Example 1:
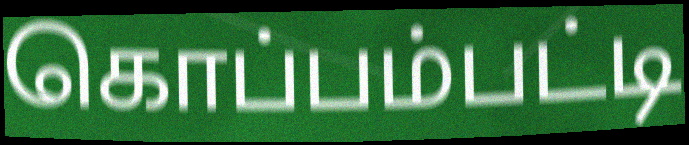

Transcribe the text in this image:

கொப்பம்பட்டி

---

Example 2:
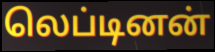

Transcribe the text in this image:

லெப்டினன்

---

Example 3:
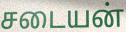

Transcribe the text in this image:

சடையன்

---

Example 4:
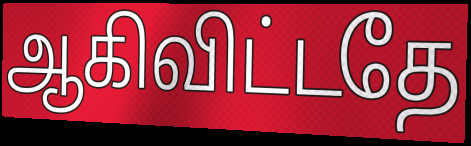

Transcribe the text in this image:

ஆகிவிட்டதே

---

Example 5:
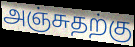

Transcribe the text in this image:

அஞ்சுதற்கு